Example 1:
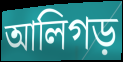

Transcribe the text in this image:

আলিগড়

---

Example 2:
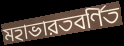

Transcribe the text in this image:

মহাভারতবর্ণিত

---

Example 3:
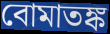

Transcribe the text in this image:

বোমাতঙ্ক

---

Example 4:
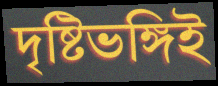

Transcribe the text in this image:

দৃষ্টিভঙ্গিই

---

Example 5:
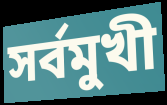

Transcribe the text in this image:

সর্বমুখী